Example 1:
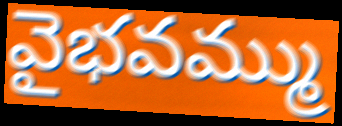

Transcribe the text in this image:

వైభవమ్ము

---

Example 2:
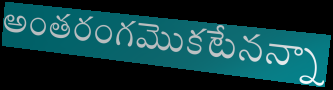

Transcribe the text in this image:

అంతరంగమొకటేనన్నా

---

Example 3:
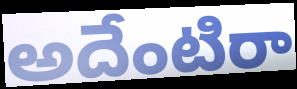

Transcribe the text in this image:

అదేంటిరా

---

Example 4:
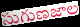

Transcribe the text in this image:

సుగుణజాల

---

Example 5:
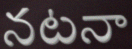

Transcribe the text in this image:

నటనా